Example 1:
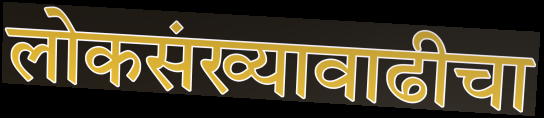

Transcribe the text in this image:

लोकसंख्यावाढीचा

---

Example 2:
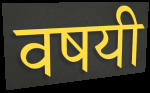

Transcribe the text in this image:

वषयी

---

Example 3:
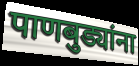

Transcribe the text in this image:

पाणबुड्यांना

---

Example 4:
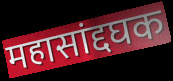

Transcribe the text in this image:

महासांद्दघक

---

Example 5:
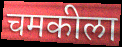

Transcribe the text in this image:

चमकीला